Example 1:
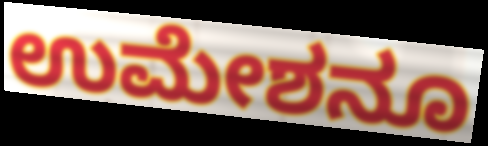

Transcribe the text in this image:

ಉಮೇಶನೂ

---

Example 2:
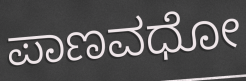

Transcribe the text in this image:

ಪಾಣವಧೋ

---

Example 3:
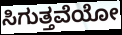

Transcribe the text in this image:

ಸಿಗುತ್ತವೆಯೋ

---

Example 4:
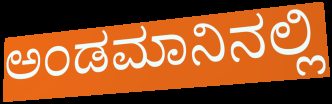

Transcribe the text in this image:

ಅಂಡಮಾನಿನಲ್ಲಿ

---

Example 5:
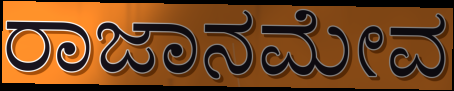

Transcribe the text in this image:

ರಾಜಾನಮೇವ